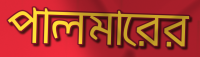
পালমারের